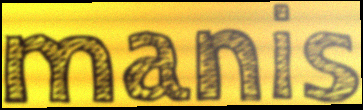
manis